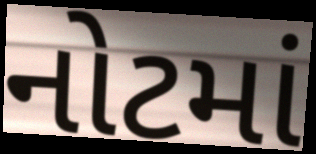
નોટમાં